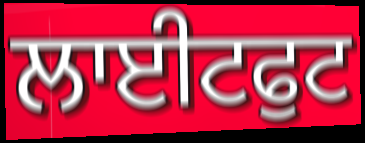
ਲਾਈਟਫੁਟ